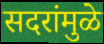
सदरांमुळे